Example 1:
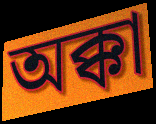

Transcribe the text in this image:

অক্কা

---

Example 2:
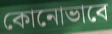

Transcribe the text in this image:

কোনোভাবে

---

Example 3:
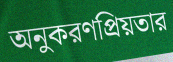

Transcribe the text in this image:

অনুকরণপ্রিয়তার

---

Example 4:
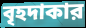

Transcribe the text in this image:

বৃহদাকার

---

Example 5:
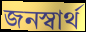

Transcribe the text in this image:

জনস্বার্থ